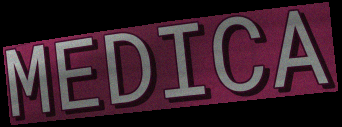
MEDICA